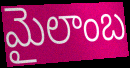
మైలాంబ